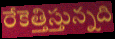
రేకెత్తిస్తున్నది